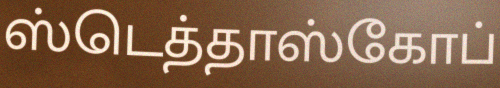
ஸ்டெத்தாஸ்கோப்